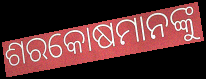
ଶରକୋଷମାନଙ୍କୁ